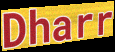
Dharr